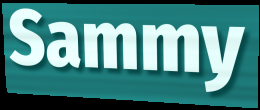
Sammy